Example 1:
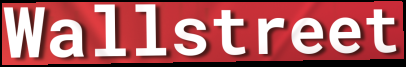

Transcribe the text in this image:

Wallstreet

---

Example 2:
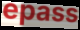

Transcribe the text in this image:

epass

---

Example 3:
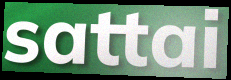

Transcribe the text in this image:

sattai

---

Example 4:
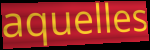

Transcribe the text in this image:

aquelles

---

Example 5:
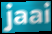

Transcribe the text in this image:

jaai